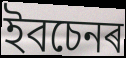
ইবচেনৰ